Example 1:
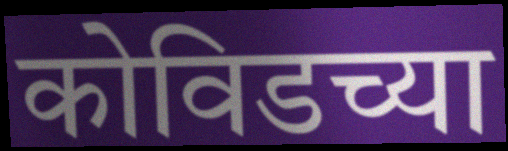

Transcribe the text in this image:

कोविडच्या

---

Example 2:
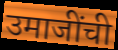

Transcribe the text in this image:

उमाजींची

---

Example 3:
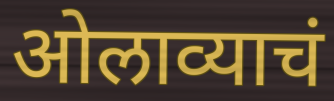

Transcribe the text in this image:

ओलाव्याचं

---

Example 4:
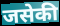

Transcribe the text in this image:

जसेकी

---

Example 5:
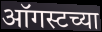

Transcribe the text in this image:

ऑगस्टच्या